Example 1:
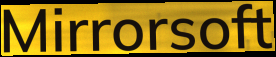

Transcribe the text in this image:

Mirrorsoft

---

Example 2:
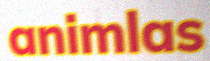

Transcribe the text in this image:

animlas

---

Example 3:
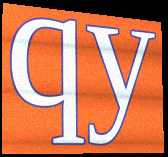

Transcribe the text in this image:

qy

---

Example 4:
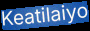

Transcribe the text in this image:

Keatilaiyo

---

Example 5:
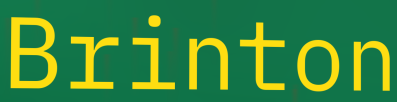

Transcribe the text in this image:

Brinton